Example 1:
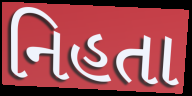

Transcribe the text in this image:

નિહતા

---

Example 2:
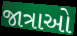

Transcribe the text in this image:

જાત્રાઓ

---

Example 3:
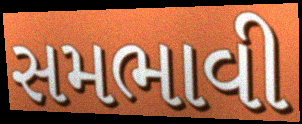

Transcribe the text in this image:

સમભાવી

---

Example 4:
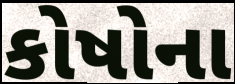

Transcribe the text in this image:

કોષોના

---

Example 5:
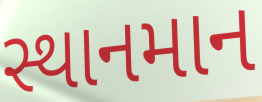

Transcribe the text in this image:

સ્થાનમાન